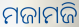
ମଜାମଜି